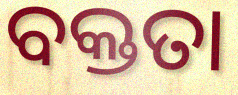
ବକ୍ତତା